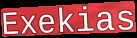
Exekias